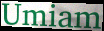
Umiam